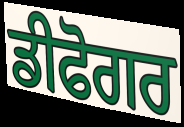
ਡੀਫੋਗਰ